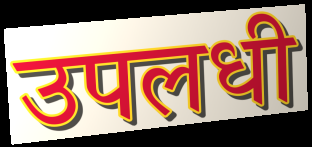
उपलधी